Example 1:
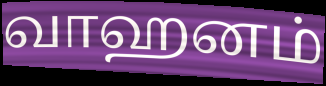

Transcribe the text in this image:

வாஹனம்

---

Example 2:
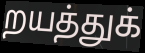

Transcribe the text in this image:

றயத்துக்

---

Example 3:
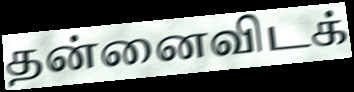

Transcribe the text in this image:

தன்னைவிடக்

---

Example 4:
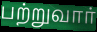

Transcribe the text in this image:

பற்றுவார்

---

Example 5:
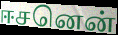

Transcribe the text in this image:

ஈசனென்